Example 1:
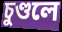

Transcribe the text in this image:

চুণ্ডলে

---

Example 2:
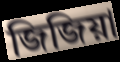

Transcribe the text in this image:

জিজিয়া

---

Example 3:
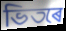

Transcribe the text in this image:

ভিতৰে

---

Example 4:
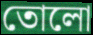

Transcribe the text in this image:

তোলো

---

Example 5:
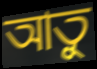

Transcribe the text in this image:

আতু